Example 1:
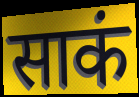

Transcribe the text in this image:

साकं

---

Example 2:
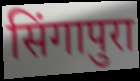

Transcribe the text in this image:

सिंगापुरा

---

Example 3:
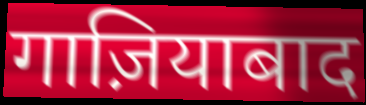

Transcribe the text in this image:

गाज़ियाबाद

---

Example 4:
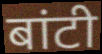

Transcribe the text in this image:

बांटी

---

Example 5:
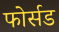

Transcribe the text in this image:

फोर्सड